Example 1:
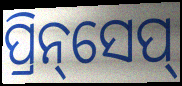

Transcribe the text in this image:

ପ୍ରିନ୍‌ସେପ୍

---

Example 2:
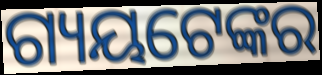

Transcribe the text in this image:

ଗ୍ୟୟଟେଙ୍କର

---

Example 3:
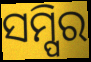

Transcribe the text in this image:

ସମ୍ପିର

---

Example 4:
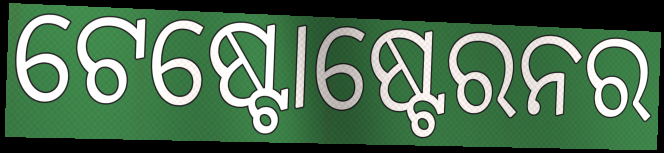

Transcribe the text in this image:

ଟେଷ୍ଟୋଷ୍ଟେରନର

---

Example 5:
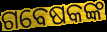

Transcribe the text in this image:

ଗବେଷକଙ୍କ